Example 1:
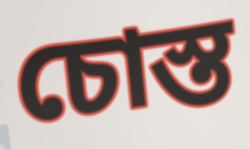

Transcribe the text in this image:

চোস্ত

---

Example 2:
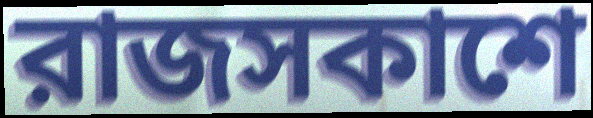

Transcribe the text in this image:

রাজসকাশে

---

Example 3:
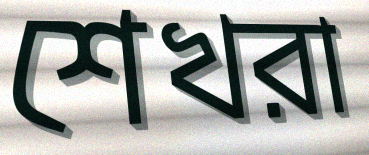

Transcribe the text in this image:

শেখরা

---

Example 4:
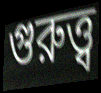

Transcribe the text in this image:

গুরুত্ত্ব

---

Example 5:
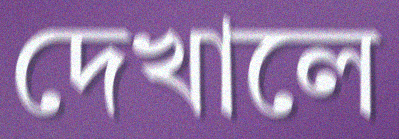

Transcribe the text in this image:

দেখালে